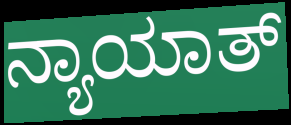
ನ್ಯಾಯಾತ್